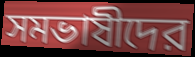
সমভাষীদের